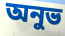
অনুভ